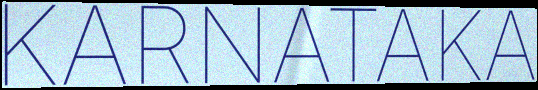
KARNATAKA